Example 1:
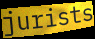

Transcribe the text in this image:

jurists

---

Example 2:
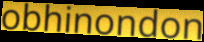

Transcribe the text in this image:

obhinondon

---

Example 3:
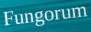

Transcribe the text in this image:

Fungorum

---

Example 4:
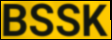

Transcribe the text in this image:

BSSK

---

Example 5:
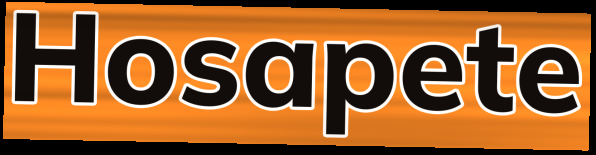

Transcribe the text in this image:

Hosapete